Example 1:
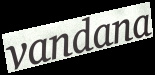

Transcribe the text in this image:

vandana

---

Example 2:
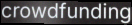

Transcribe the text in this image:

crowdfunding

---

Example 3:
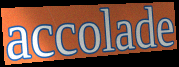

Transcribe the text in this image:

accolade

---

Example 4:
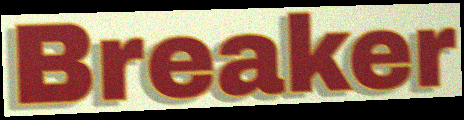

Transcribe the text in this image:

Breaker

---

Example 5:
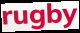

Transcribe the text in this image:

rugby